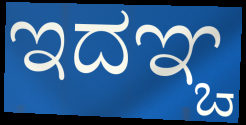
ಇದಞ್ಚ